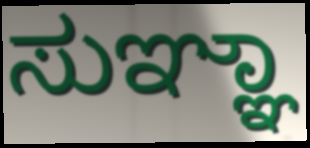
ಸುಞ್ಞಾ